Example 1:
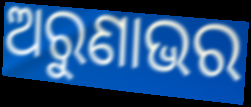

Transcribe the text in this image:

ଅରୁଣାଭର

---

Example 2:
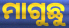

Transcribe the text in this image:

ମାଗୁଛୁ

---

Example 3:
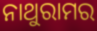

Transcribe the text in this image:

ନାଥୁରାମର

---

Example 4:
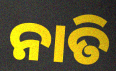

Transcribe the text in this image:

ନାତି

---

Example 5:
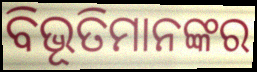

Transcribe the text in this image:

ବିଭୂତିମାନଙ୍କର